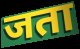
जता